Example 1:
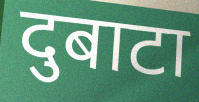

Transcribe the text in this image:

दुबाटा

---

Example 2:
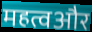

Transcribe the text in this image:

महत्वऔर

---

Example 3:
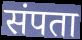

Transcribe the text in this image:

संपता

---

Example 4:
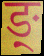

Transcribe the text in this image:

ङ्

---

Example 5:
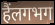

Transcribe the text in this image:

हैंलगभग